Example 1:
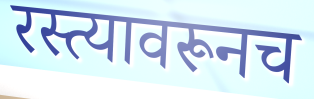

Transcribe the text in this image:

रस्त्यावरूनच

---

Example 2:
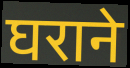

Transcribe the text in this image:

घराने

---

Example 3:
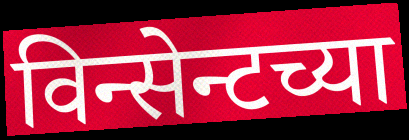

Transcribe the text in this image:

विन्सेन्टच्या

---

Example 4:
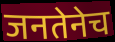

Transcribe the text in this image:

जनतेनेच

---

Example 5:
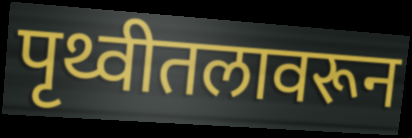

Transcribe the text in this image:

पृथ्वीतलावरून